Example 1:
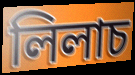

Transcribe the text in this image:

লিলাচ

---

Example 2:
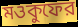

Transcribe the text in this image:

মওকুফের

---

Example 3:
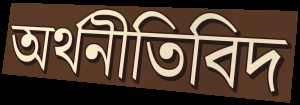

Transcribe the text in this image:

অর্থনীতিবিদ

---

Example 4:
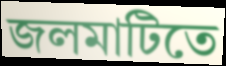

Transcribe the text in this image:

জলমাটিতে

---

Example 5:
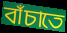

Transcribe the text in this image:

বাঁচাতে